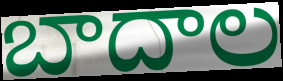
బాదాల